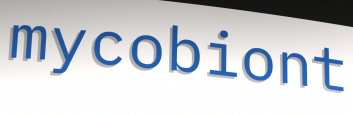
mycobiont